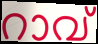
റാവ്